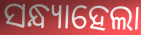
ସନ୍ଧ୍ୟାହେଲା